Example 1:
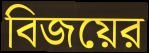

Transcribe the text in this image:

বিজয়ের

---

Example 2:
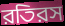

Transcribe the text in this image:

রতিরস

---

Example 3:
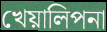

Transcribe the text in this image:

খেয়ালিপনা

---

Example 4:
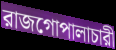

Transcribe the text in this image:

রাজগোপালাচারী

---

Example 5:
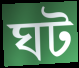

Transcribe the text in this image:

ঘট